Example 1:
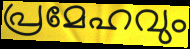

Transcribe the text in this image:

പ്രമേഹവും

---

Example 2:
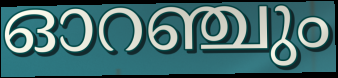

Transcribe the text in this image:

ഓറഞ്ചും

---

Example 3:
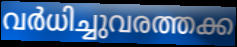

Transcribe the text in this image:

വർധിച്ചുവരത്തക്ക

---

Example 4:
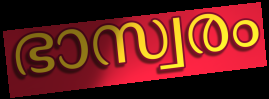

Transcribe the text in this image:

ഭാസ്വരം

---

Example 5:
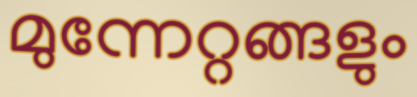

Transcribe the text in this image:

മുന്നേറ്റങ്ങളും